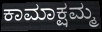
ಕಾಮಾಕ್ಷಮ್ಮ